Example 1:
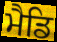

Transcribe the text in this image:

ਮੈਡਿ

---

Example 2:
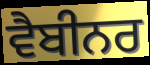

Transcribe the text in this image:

ਵੈਬੀਨਰ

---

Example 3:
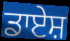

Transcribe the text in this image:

ਡਾਏਸ਼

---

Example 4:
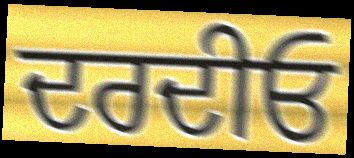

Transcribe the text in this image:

ਦਰਦੀਓ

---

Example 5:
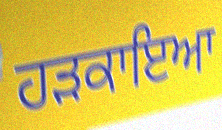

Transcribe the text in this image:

ਹੜਕਾਇਆ